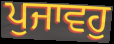
ਪੁਜਾਵਹੁ